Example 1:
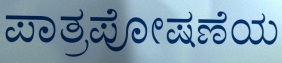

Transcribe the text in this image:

ಪಾತ್ರಪೋಷಣೆಯ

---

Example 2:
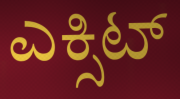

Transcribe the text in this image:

ಎಕ್ಸಿಟ್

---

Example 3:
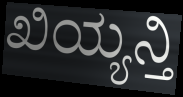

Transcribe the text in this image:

ಖಿಯ್ಯನ್ತಿ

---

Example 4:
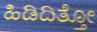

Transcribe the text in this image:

ಹಿಡಿದಿತ್ತೋ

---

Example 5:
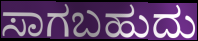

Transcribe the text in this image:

ಸಾಗಬಹುದು